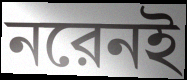
নরেনই